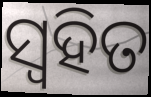
ସ୍ୱହିତ